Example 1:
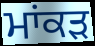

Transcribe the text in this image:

ਮਾਂਕੜ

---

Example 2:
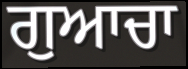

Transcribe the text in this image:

ਗੁਆਚਾ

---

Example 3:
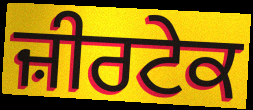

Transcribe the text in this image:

ਜ਼ੀਰਟੇਕ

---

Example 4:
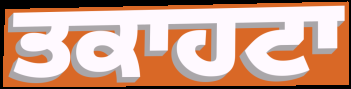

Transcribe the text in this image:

ਤਕਾਹਟਾ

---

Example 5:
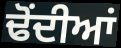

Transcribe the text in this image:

ਢੋਂਦੀਆਂ